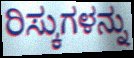
ರಿಸ್ಕುಗಳನ್ನು